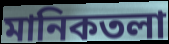
মানিকতলা